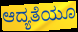
ಆದ್ಯತೆಯೂ